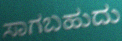
ಸಾಗಬಹುದು